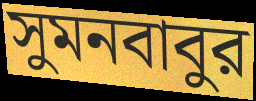
সুমনবাবুর